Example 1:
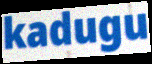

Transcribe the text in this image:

kadugu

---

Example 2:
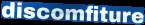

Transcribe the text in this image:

discomfiture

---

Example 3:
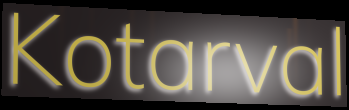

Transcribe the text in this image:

Kotarval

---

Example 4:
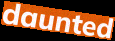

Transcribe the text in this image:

daunted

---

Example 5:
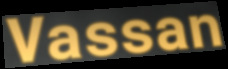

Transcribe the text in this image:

Vassan